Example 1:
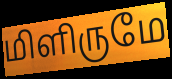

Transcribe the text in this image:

மிளிருமே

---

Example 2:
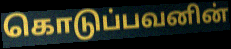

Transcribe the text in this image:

கொடுப்பவனின்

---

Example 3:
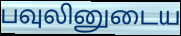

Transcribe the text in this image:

பவுலினுடைய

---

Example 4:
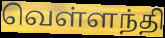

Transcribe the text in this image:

வெள்ளந்தி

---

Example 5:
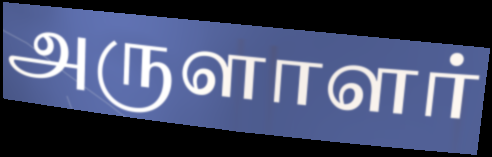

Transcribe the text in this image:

அருளாளர்